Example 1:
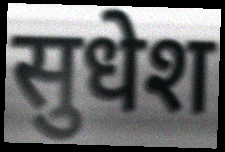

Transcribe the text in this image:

सुधेश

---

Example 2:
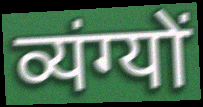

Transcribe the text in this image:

व्यंग्यों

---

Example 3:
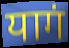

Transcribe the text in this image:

यागं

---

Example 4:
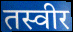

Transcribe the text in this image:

तस्‍वीर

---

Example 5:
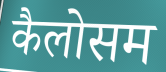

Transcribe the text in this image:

कैलोसम